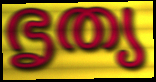
ഭൃത്യ